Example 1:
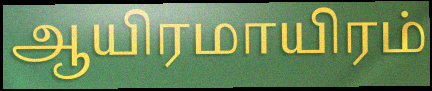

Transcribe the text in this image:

ஆயிரமாயிரம்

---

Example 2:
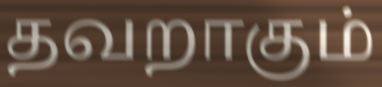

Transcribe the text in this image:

தவறாகும்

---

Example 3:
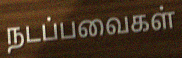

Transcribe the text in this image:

நடப்பவைகள்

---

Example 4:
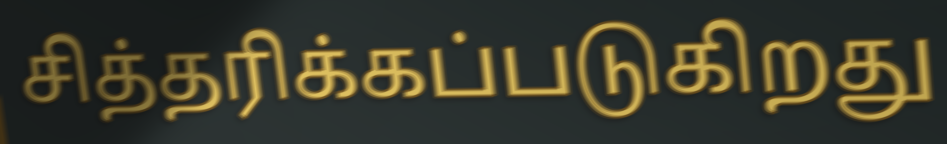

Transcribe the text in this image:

சித்தரிக்கப்படுகிறது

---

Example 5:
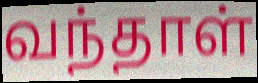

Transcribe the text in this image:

வந்தாள்